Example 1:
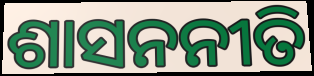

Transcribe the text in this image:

ଶାସନନୀତି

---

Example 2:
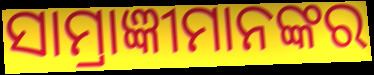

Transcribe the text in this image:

ସାମ୍ରାଜ୍ଞୀମାନଙ୍କର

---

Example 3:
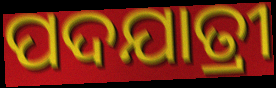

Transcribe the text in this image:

ପଦଯାତ୍ରୀ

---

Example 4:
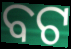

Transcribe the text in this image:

ବଟ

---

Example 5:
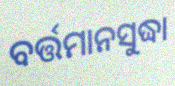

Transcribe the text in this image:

ବର୍ତ୍ତମାନସୁଦ୍ଧା